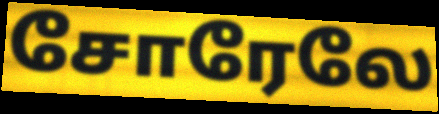
சோரேலே